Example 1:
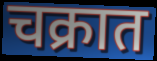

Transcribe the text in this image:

चक्रात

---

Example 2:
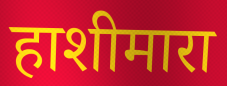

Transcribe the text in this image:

हाशीमारा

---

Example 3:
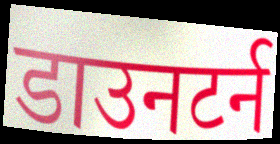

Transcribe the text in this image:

डाउनटर्न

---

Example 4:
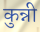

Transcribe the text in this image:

कुन्नी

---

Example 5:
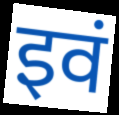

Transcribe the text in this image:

इवं